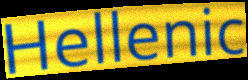
Hellenic